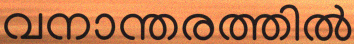
വനാന്തരത്തിൽ